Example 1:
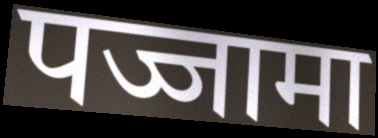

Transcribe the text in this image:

पज्जामा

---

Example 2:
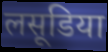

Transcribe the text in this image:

लसूडिया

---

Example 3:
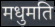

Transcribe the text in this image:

मधुमति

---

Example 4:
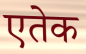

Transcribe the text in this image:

एतेक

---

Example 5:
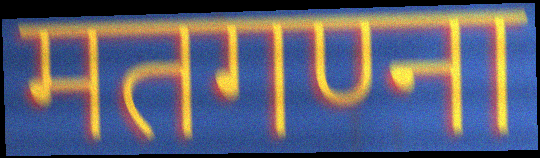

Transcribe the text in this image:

मतगण्ना